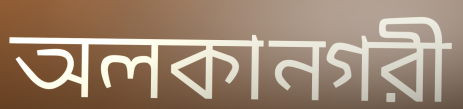
অলকানগরী